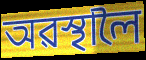
অৱস্থালৈ